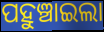
ପହୁଞ୍ଚାଇଲା